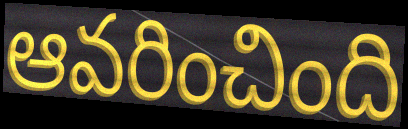
ఆవరించింది